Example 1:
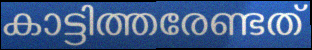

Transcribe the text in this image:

കാട്ടിത്തരേണ്ടത്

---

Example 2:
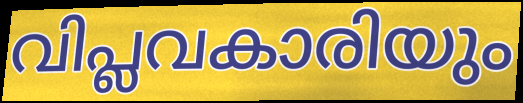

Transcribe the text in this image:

വിപ്ലവകാരിയും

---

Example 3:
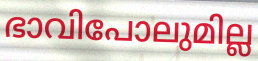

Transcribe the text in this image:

ഭാവിപോലുമില്ല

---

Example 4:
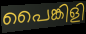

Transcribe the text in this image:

പൈങ്കിളി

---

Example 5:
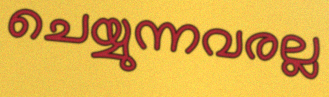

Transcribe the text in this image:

ചെയ്യുന്നവരല്ല